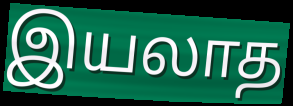
இயலாத